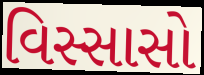
વિસ્સાસો